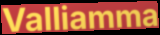
Valliamma